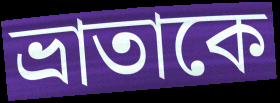
ভ্রাতাকে